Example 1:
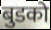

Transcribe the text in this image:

बुडको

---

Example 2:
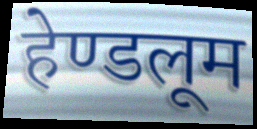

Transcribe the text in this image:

हेण्डलूम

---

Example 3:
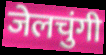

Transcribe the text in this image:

जेलचुंगी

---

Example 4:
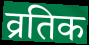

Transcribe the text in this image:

व्रतिक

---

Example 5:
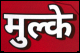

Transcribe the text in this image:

मुल्के